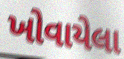
ખોવાયેલા